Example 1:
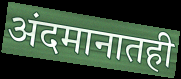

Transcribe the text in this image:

अंदमानातही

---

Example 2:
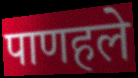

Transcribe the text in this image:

पाणहले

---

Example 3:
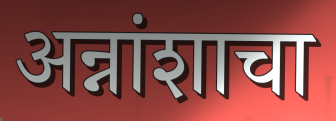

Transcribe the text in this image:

अन्नांशाचा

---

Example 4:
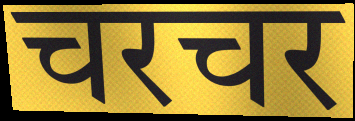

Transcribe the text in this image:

चरचर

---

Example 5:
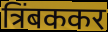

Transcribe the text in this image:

त्रिंबककर